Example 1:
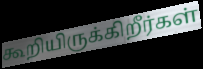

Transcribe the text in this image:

கூறியிருக்கிறீர்கள்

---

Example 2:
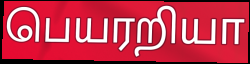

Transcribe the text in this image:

பெயரறியா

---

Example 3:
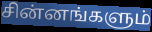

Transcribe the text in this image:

சின்னங்களும்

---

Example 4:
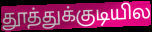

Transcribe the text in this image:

தூத்துக்குடியில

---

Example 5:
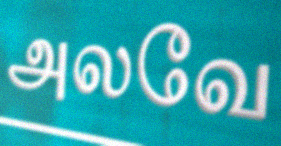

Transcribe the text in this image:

அலவே